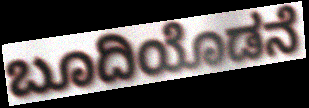
ಬೂದಿಯೊಡನೆ